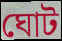
ঘোট